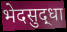
भेदसुद्धा